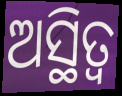
ଅସ୍ଥିତ୍ଵ